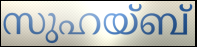
സുഹയ്ബ്